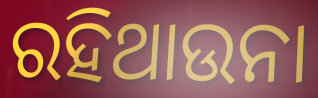
ରହିଥାଉନା